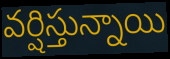
వర్షిస్తున్నాయి